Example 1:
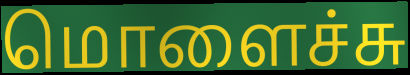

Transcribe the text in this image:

மொளைச்சு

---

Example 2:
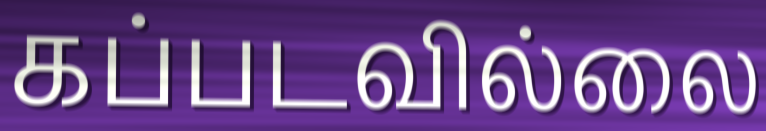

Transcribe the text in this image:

கப்படவில்லை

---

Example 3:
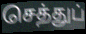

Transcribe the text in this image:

செத்துப்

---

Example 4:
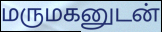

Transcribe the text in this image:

மருமகனுடன்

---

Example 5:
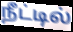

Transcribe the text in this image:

நீட்டில்